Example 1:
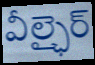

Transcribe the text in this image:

వీల్ఛైర్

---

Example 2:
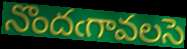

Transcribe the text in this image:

నొందఁగావలసె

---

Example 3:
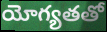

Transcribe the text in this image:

యోగ్యతతో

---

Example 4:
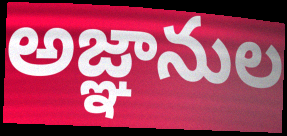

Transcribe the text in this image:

అజ్ఞానుల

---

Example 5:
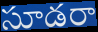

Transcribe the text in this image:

సూడరా